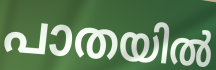
പാതയിൽ